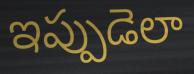
ఇప్పుడెలా